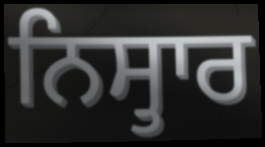
ਨਿਸ੍ਤਾਰ